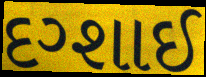
દગ્શાઈ